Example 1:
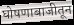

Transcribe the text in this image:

घोषणाबाजीतून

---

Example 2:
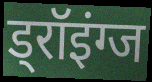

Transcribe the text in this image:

ड्रॉइंग्ज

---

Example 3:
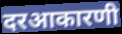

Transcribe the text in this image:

दरआकारणी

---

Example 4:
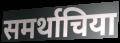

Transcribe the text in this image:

समर्थाचिया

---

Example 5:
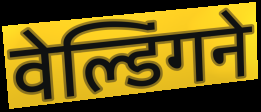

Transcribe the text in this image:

वेल्डिंगने